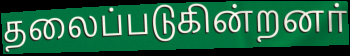
தலைப்படுகின்றனர்